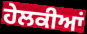
ਹੇਲਕੀਆਂ